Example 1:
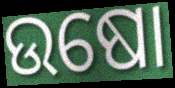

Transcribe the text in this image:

ଉଷୋ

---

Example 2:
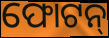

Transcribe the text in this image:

ଫୋଟନ୍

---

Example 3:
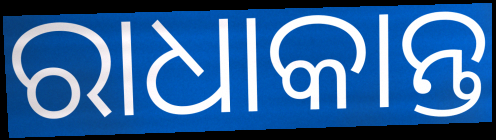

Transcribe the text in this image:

ରାଧାକାନ୍ତ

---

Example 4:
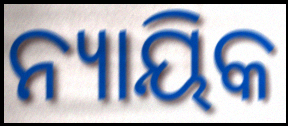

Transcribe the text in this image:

ନ୍ୟାୟିକ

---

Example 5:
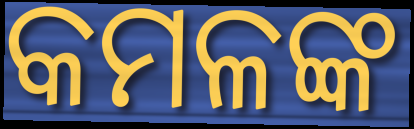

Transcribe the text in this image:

କମଳଙ୍କ